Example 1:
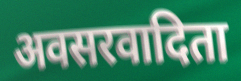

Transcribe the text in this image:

अवसरवादिता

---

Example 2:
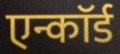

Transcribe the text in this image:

एन्कॉर्ड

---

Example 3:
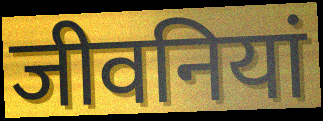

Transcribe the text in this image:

जीवनियां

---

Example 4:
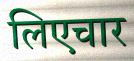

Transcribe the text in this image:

लिएचार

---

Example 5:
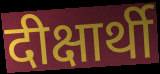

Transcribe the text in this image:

दीक्षार्थी